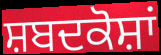
ਸ਼ਬਦਕੋਸ਼ਾਂ